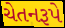
ચેતનરૂપે